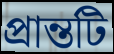
প্রান্তটি